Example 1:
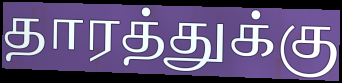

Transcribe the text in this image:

தாரத்துக்கு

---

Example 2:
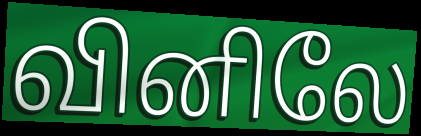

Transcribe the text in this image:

வினிலே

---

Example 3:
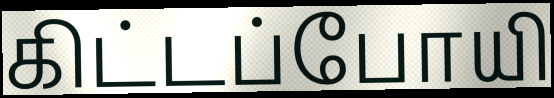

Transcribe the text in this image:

கிட்டப்போயி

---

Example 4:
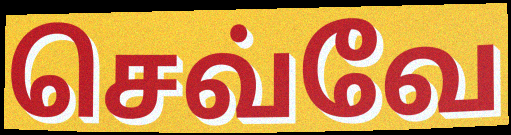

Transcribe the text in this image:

செவ்வே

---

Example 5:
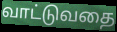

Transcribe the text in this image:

வாட்டுவதை